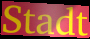
Stadt